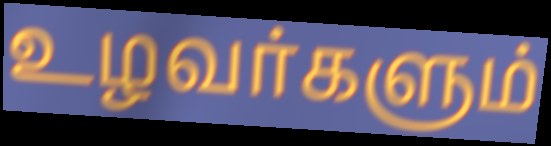
உழவர்களும்